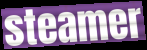
steamer